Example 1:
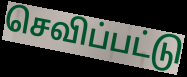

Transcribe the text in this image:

செவிப்பட்டு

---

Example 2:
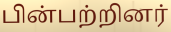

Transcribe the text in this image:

பின்பற்றினர்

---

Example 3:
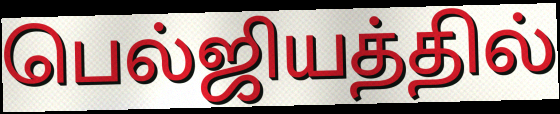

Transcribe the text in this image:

பெல்ஜியத்தில்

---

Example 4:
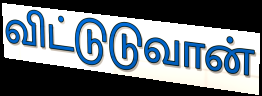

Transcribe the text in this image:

விட்டுடுவான்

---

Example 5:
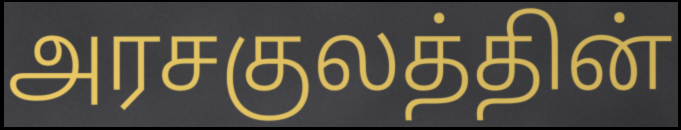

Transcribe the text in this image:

அரசகுலத்தின்